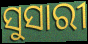
ସୁସାରୀ